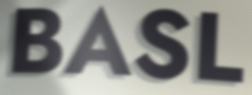
BASL